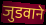
जुडवाने